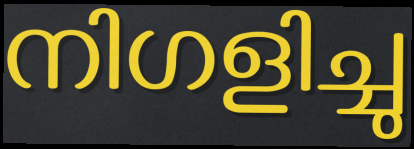
നിഗളിച്ചു